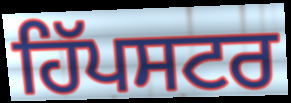
ਹਿੱਪਸਟਰ